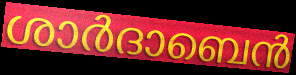
ശാർദാബെൻ